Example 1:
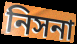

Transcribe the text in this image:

নিসনা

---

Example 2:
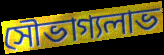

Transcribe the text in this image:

সৌভাগ্যলাভ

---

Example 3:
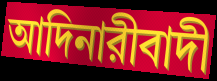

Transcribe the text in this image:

আদিনারীবাদী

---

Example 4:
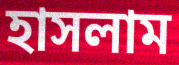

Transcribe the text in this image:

হাসলাম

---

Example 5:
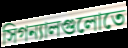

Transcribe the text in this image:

সিগন্যালগুলোতে